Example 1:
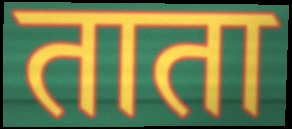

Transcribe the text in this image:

ताता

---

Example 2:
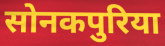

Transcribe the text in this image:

सोनकपुरिया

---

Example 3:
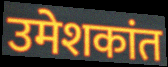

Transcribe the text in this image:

उमेशकांत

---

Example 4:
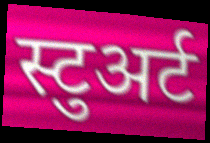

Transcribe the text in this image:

स्टुअर्ट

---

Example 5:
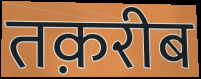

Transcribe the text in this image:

तक़रीब